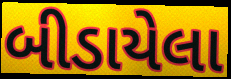
બીડાયેલા